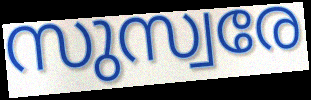
സുസ്വരേ